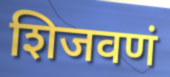
शिजवणं